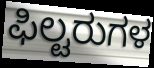
ಫಿಲ್ಟರುಗಳ